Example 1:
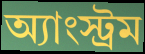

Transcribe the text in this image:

অ্যাংস্ট্রম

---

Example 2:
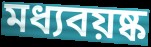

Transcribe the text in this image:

মধ্যবয়ষ্ক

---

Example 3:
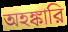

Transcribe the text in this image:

অহঙ্কারি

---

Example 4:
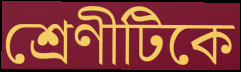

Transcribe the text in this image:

শ্রেণীটিকে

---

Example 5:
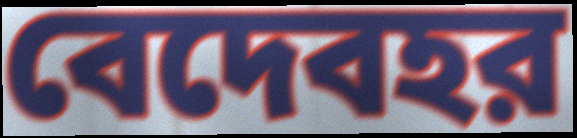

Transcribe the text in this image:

বেদেবহর